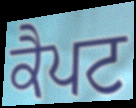
ਕੈਪਟ